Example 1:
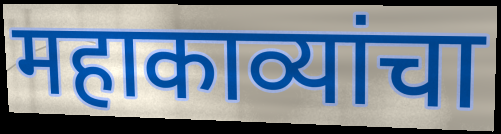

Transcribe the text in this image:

महाकाव्यांचा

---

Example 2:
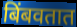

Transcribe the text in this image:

बिंबवतात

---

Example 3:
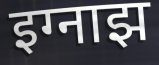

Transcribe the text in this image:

इग्नाझ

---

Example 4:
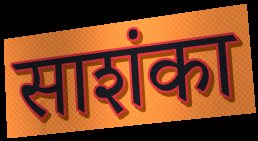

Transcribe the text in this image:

साशंका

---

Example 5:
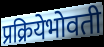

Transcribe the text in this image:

प्रक्रियेभोवती